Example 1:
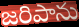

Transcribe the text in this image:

జరిపాను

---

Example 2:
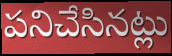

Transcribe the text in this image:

పనిచేసినట్లు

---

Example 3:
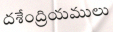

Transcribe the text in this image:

దశేంద్రియములు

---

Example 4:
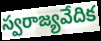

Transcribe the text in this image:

స్వరాజ్యవేదిక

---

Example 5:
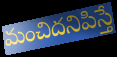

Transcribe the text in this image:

మంచిదనిపిస్తే